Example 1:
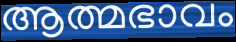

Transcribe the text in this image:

ആത്മഭാവം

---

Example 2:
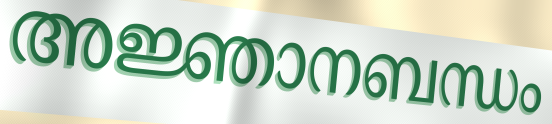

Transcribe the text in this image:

അജ്ഞാനബന്ധം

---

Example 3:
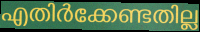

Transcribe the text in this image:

എതിർക്കേണ്ടതില്ല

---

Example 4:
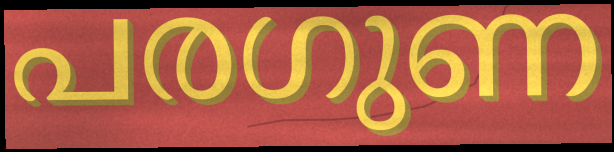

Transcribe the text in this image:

പരഗുണ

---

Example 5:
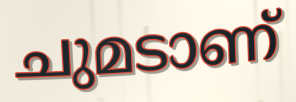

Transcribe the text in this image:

ചുമടാണ്